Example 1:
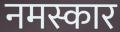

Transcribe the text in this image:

नमस्कार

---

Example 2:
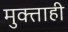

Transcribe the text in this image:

मुक्ताही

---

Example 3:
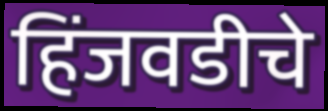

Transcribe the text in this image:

हिंजवडीचे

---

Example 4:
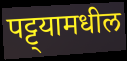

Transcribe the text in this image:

पट्ट्यामधील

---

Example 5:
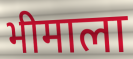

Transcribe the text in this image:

भीमाला